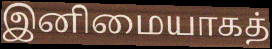
இனிமையாகத்